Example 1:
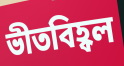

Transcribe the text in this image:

ভীতবিহ্বল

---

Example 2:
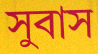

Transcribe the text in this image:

সুবাস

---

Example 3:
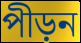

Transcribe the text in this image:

পীড়ন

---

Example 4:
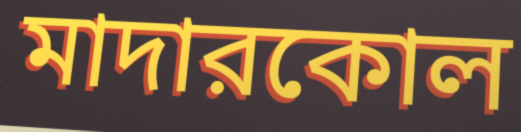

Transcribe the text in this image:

মাদারকোল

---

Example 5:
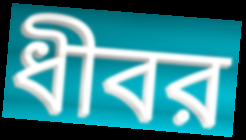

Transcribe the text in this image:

ধীবর